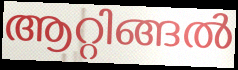
ആറ്റിങ്ങൽ